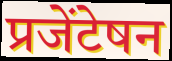
प्रजेंटेषन